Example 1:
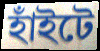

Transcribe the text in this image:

হাঁইটে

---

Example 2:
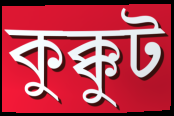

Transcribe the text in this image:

কুক্কুট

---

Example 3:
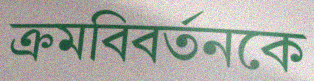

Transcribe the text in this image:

ক্রমবিবর্তনকে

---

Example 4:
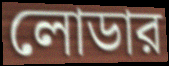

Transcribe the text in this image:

লোডার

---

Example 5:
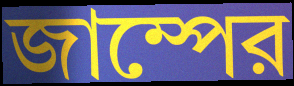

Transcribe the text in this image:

জাম্পের